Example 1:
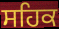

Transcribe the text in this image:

ਸਹਿਕ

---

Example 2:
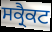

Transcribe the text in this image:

ਸਕ੍ਰੈਕਟ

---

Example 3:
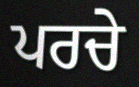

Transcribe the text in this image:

ਪਰਚੇ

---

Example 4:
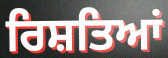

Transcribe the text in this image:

ਰਿਸ਼ਤਿਆਂ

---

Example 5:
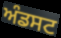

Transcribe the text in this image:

ਅੰਡਸਟ